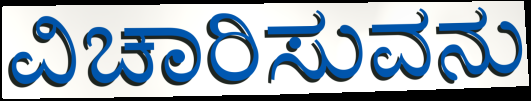
ವಿಚಾರಿಸುವನು